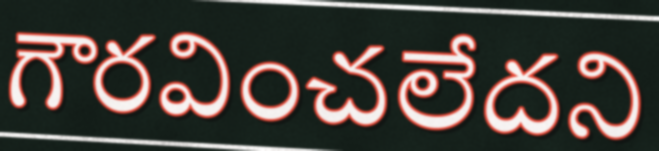
గౌరవించలేదని